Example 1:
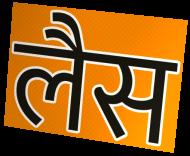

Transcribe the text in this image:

लैस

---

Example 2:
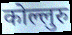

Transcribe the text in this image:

कोल्लुरु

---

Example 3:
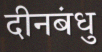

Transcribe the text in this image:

दीनबंधु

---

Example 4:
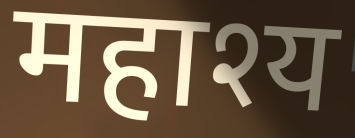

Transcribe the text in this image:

महाश्य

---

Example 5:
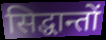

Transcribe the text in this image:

सिद्धान्तों